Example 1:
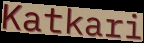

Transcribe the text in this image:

Katkari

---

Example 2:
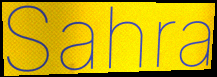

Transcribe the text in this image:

Sahra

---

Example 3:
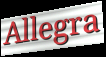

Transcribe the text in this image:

Allegra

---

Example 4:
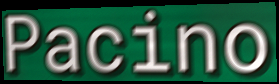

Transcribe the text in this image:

Pacino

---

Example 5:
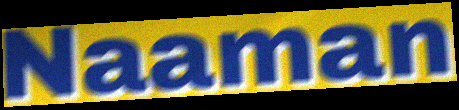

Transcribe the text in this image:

Naaman